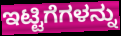
ಇಟ್ಟಿಗೆಗಳನ್ನು